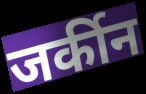
जर्कीन